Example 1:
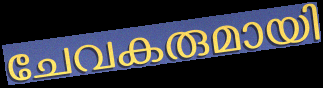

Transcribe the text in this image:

ചേവകരുമായി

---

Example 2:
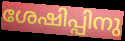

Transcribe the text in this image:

ശേഷിപ്പിനു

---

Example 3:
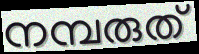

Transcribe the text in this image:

നമ്പരുത്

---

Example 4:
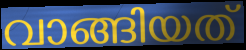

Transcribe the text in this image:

വാങ്ങിയത്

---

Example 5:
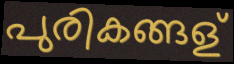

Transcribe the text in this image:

പുരികങ്ങള്